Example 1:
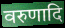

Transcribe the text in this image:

वरुणादि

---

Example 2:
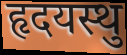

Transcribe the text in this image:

हृदयस्थु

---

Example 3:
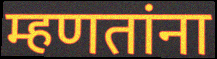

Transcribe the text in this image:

म्हणतांना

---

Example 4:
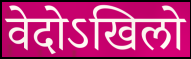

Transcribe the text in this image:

वेदोऽखिलो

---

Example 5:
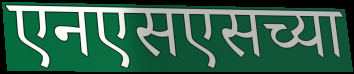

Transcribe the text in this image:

एनएसएसच्या